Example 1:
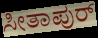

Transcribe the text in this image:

ಸೀತಾಪುರ್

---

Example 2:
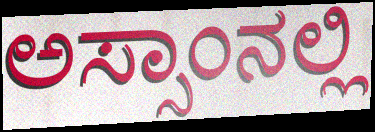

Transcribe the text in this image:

ಅಸ್ಸಾಂನಲ್ಲಿ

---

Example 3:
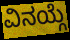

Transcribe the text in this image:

ವಿನಯ್ಗೆ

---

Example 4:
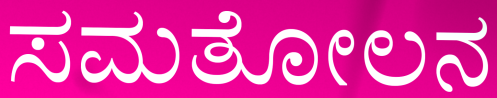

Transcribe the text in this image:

ಸಮತೋಲನ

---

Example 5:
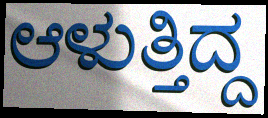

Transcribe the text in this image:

ಆಳುತ್ತಿದ್ದ